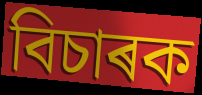
বিচাৰক